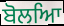
ਬੋਲਆਿ